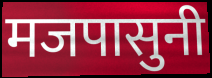
मजपासुनी